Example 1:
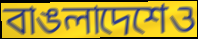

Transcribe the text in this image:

বাঙলাদেশেও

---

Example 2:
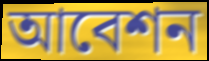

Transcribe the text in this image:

আবেশন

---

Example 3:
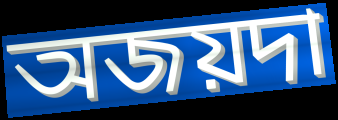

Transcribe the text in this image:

অজয়দা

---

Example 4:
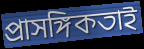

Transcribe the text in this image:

প্রাসঙ্গিকতাই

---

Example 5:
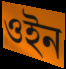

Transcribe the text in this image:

ওইন